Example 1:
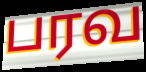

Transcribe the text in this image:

பரவ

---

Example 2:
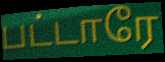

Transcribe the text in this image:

பட்டாரே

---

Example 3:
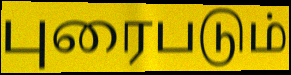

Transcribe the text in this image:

புரைபடும்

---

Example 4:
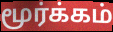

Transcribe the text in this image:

மூர்க்கம்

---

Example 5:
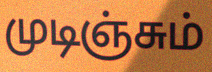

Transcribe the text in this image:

முடிஞ்சும்